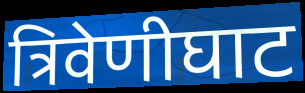
त्रिवेणीघाट